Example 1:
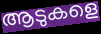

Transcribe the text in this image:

ആടുകളെ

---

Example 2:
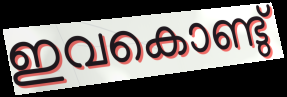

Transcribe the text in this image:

ഇവകൊണ്ടു്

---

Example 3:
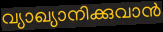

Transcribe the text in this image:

വ്യാഖ്യാനിക്കുവാൻ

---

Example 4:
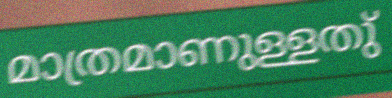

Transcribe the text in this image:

മാത്രമാണുള്ളതു്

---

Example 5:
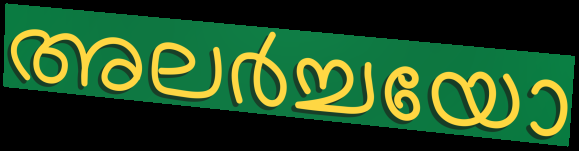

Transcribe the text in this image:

അലർച്ചയോ